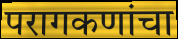
परागकणांचा